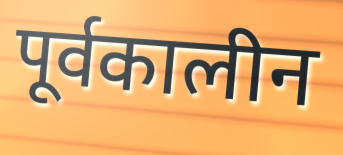
पूर्वकालीन